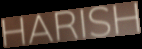
HARISH